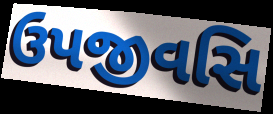
ઉપજીવસિ